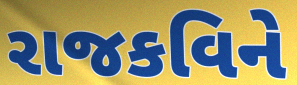
રાજકવિને